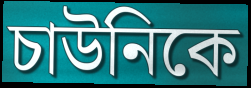
চাউনিকে